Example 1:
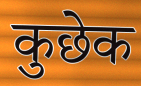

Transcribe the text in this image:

कुछेक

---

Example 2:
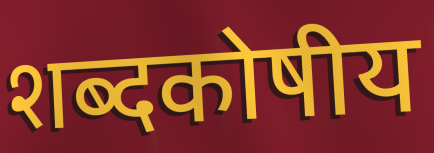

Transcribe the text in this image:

शब्दकोषीय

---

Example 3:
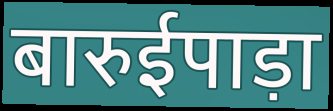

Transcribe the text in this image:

बारुईपाड़ा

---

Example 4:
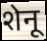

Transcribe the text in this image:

शेनू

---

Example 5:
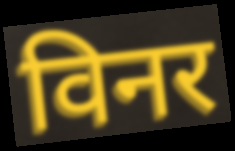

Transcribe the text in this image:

विनर